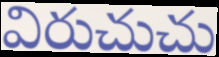
విరుచుచు